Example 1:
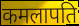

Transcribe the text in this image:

कमलापति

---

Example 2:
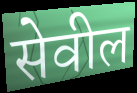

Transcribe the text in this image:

सेवील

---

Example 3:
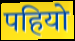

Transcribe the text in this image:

पहियो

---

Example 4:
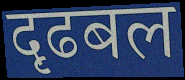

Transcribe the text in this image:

दृढबल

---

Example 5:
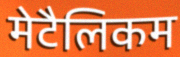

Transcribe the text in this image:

मेटैलिकम